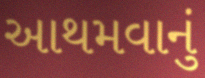
આથમવાનું